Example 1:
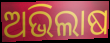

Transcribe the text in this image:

ଅଭିଲାଷ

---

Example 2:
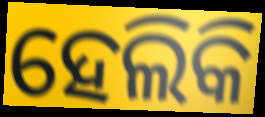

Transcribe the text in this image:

ହେଲିକି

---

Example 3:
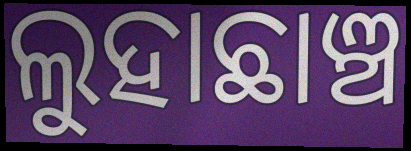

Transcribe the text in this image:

ଲୁହାଛାଞ୍ଚ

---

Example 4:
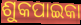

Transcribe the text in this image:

ଶୁକପାଇକା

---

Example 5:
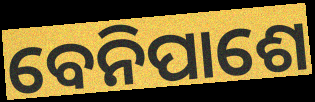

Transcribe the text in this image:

ବେନିପାଶେ